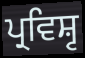
ਪ੍ਰਵਿਸ਼੍ਟ